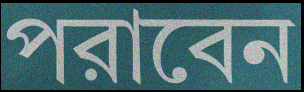
পরাবেন